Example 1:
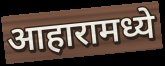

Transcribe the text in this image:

आहारामध्ये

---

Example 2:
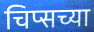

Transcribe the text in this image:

चिप्सच्या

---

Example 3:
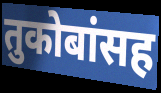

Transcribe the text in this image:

तुकोबांसह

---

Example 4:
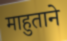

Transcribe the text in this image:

माहुताने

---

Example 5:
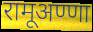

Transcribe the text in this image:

रामूअण्णा